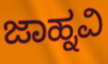
ಜಾಹ್ನವಿ